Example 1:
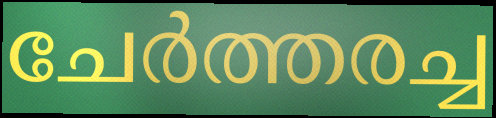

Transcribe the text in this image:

ചേർത്തരച്ച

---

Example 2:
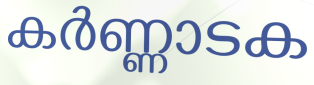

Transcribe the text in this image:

കർണ്ണാടക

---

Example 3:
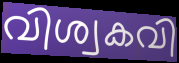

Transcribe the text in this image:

വിശ്വകവി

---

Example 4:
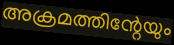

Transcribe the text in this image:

അക്രമത്തിന്റേയും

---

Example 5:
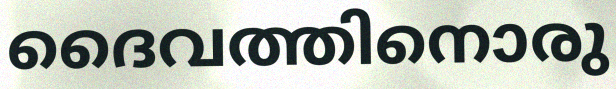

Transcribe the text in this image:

ദൈവത്തിനൊരു